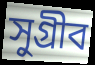
সুগ্রীব